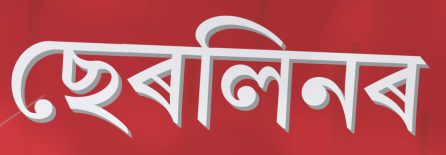
ছেৰলিনৰ